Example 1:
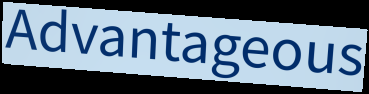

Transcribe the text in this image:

Advantageous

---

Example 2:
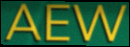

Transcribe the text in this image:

AEW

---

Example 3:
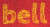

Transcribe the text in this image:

bell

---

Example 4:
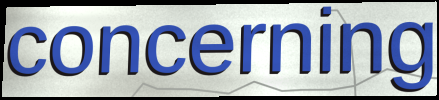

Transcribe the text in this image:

concerning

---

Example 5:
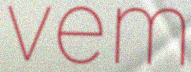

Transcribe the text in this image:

vem